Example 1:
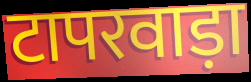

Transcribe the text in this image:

टापरवाड़ा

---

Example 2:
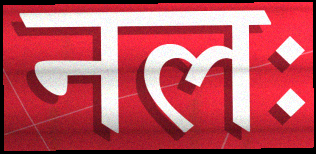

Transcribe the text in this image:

नलः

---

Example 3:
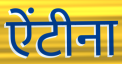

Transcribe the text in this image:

ऐंटीना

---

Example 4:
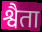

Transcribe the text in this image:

श्वैता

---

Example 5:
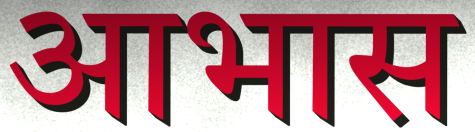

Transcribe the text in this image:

आभास